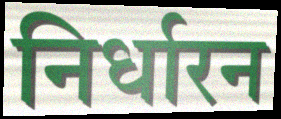
निर्धारन